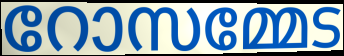
റോസമ്മേട